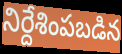
నిర్దేశింపబడిన